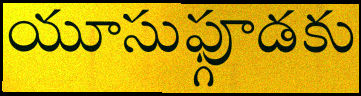
యూసుఫ్గూడకు